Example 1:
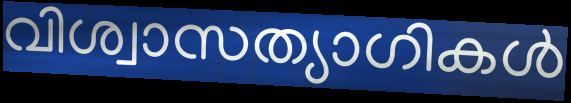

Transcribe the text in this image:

വിശ്വാസത്യാഗികൾ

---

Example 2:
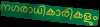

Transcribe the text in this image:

നഗരാധികാരികളും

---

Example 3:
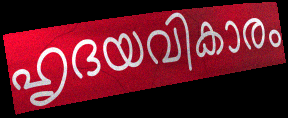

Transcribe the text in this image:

ഹൃദയവികാരം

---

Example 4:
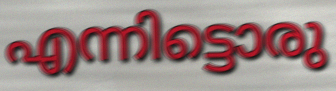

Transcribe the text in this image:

എന്നിട്ടൊരു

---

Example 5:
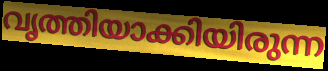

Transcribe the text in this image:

വൃത്തിയാക്കിയിരുന്ന